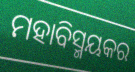
ମହାବିସ୍ମୟକର